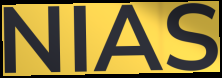
NIAS